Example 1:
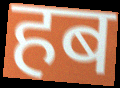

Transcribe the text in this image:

हब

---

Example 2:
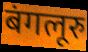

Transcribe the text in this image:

बंगलूरु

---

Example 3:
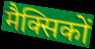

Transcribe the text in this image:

मैक्सिकों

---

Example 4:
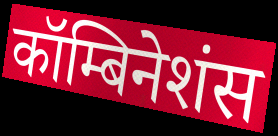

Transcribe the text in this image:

कॉम्बिनेशंस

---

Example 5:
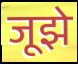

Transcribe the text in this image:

जूझे